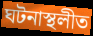
ঘটনাস্থলীত